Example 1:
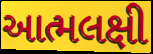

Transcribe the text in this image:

આત્મલક્ષી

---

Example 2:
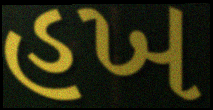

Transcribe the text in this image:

હખ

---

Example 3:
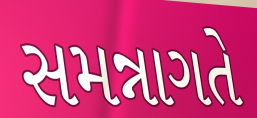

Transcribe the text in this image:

સમન્નાગતે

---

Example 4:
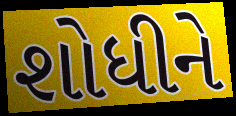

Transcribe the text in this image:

શોધીને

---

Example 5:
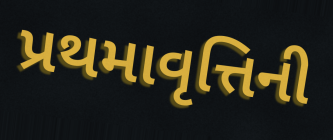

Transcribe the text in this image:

પ્રથમાવૃત્તિની